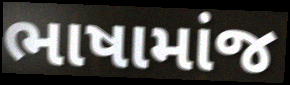
ભાષામાંજ